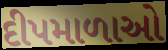
દીપમાળાઓ